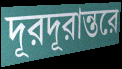
দূরদূরান্তরে